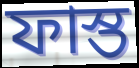
ফাস্ত